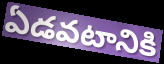
ఏడవటానికి